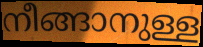
നീങ്ങാനുള്ള